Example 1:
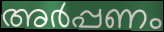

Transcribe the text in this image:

അർപ്പണം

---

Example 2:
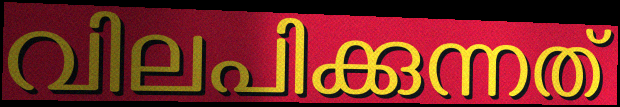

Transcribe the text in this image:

വിലപിക്കുന്നത്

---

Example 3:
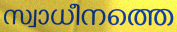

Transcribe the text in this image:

സ്വാധീനത്തെ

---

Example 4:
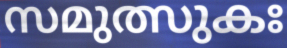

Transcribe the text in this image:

സമുത്സുകഃ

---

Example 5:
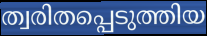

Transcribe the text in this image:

ത്വരിതപ്പെടുത്തിയ